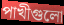
পাখীগুলো